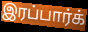
இரப்பார்க்